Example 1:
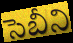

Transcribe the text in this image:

సెబీని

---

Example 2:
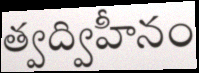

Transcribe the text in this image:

త్వద్విహీనం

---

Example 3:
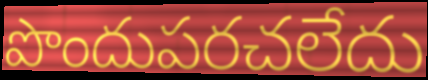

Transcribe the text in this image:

పొందుపరచలేదు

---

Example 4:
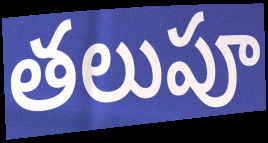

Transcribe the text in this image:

తలుపూ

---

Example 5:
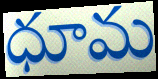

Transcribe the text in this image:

ధూమ